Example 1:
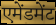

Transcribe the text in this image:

एमेंडमेंट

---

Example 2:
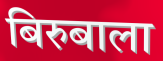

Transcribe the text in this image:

बिरुबाला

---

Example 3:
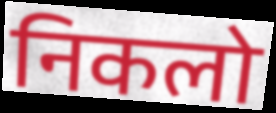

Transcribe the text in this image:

निकलो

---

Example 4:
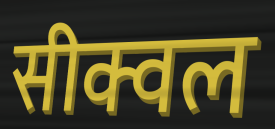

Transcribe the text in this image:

सीक्वल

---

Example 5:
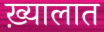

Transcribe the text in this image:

ख़्यालात